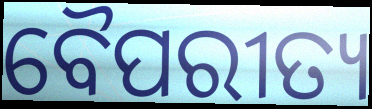
ବୈପରୀତ୍ୟ